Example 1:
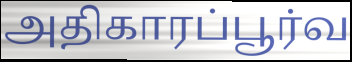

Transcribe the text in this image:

அதிகாரப்பூர்வ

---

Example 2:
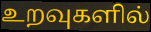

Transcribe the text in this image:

உறவுகளில்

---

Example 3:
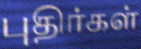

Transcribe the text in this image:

புதிர்கள்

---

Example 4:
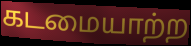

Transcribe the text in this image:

கடமையாற்ற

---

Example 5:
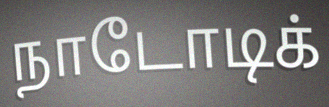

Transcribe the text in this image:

நாடோடிக்